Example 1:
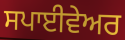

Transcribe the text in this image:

ਸਪਾਈਵੇਅਰ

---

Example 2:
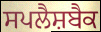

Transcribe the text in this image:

ਸਪਲੈਸ਼ਬੈਕ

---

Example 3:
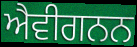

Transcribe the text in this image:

ਐਵੀਗਨਨ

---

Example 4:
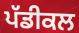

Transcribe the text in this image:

ਪੱਡੀਕਲ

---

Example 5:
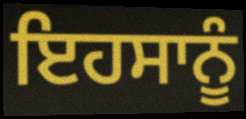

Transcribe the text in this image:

ਇਹਸਾਨੂੰ